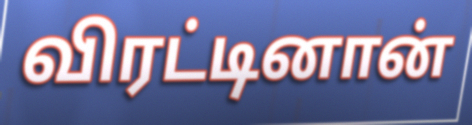
விரட்டினான்